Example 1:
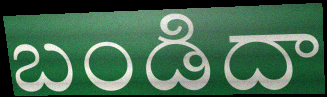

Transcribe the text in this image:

బండిదా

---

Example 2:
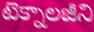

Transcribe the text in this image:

టెక్నాలజీని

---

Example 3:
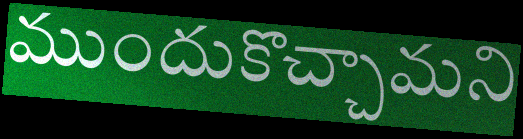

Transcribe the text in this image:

ముందుకొచ్చామని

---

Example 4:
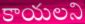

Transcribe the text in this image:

కాయలని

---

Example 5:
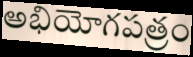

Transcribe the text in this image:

అభియోగపత్రం